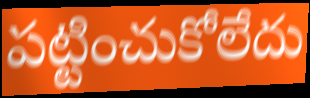
పట్టించుకోలేదు